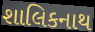
શાલિકનાથ